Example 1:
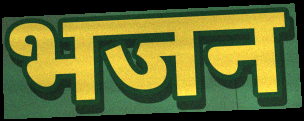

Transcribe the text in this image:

भजन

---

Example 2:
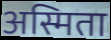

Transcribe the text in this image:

अस्मिता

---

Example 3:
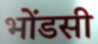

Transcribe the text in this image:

भोंडसी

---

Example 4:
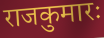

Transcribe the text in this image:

राजकुमारः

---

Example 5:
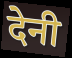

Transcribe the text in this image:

देनी